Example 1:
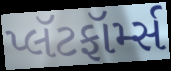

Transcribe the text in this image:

પ્લૅટફૉર્મ્સ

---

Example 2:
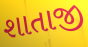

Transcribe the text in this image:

શાતાજી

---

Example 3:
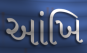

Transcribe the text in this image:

આંખિ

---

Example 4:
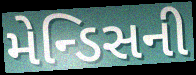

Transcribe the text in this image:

મેન્ડિસની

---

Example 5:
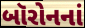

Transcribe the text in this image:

બૉરોનનાં